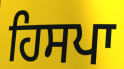
ਹਿਸਪਾ